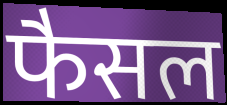
फैसल